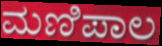
ಮಣಿಪಾಲ